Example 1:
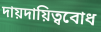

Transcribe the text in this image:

দায়দায়িত্ববোধ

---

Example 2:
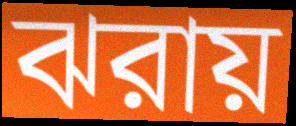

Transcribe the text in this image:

ঝরায়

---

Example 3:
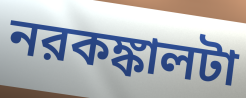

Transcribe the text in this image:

নরকঙ্কালটা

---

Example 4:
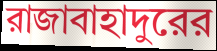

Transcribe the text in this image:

রাজাবাহাদুরের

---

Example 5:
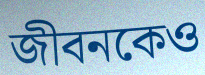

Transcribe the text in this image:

জীবনকেও